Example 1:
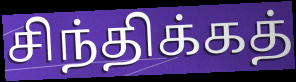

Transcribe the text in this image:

சிந்திக்கத்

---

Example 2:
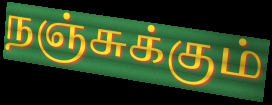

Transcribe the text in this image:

நஞ்சுக்கும்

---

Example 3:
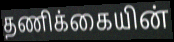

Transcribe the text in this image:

தணிக்கையின்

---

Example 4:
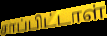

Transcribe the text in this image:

சாப்பிட்டாள்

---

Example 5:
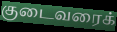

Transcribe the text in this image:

குடைவரைக்